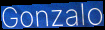
Gonzalo